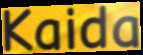
Kaida